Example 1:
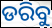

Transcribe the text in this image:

ଡରିବୁ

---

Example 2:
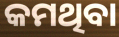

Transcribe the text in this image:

କମଥିବା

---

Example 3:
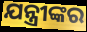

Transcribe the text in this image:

ଯନ୍ତ୍ରୀଙ୍କର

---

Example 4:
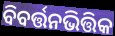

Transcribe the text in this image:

ବିବର୍ତ୍ତନଭିତ୍ତିକ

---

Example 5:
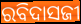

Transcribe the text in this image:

ରବିଦାସଜୀ